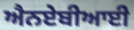
ਐਨਏਬੀਆਈ